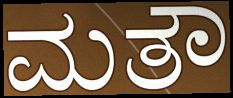
ಮತೌ